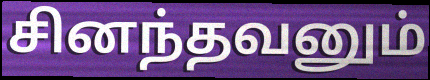
சினந்தவனும்